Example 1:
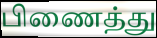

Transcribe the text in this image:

பிணைத்து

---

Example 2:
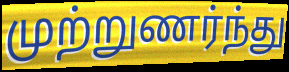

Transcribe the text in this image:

முற்றுணர்ந்து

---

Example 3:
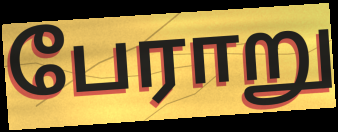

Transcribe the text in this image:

பேராறு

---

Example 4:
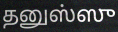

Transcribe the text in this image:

தனுஸ்ஸு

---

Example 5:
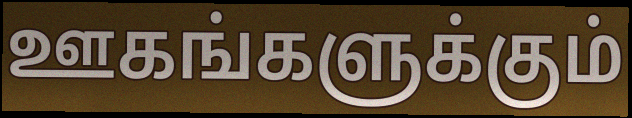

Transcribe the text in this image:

ஊகங்களுக்கும்